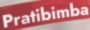
Pratibimba